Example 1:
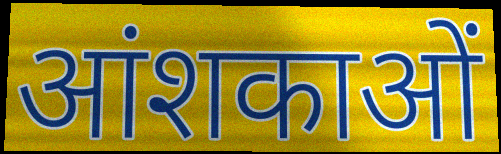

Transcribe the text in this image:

आंशकाओं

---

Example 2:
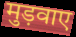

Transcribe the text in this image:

मुड़वाए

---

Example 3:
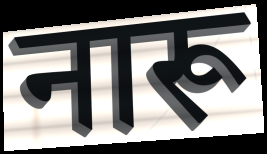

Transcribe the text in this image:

नारू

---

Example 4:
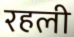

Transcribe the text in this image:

रहली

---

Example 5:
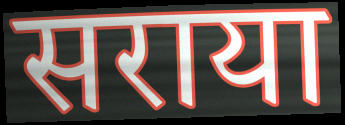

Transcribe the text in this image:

सराया